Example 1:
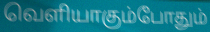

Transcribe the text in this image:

வெளியாகும்போதும்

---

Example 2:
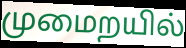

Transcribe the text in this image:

முமைறயில்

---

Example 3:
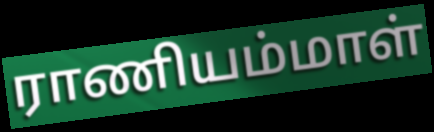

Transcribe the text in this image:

ராணியம்மாள்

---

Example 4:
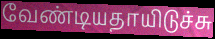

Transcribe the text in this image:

வேண்டியதாயிடுச்சு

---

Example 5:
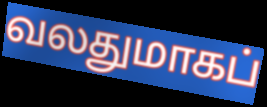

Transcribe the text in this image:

வலதுமாகப்